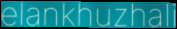
elankhuzhali